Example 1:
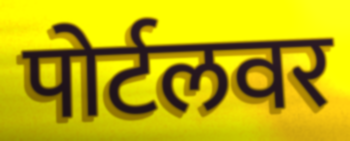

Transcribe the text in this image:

पोर्टलवर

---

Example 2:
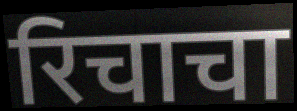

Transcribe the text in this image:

रिचाचा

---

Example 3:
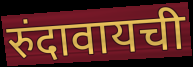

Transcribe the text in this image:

रुंदावायची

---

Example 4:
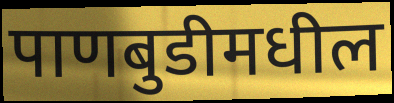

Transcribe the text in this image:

पाणबुडीमधील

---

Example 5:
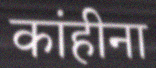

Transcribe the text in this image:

कांहीना